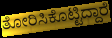
ತೋರಿಸಿಕೊಟ್ಟಿದ್ದಾರೆ